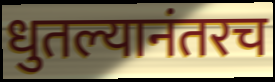
धुतल्यानंतरच